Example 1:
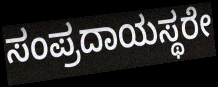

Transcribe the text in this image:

ಸಂಪ್ರದಾಯಸ್ಥರೇ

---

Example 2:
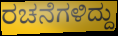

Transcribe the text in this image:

ರಚನೆಗಳಿದ್ದು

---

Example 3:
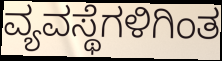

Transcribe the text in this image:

ವ್ಯವಸ್ಥೆಗಳಿಗಿಂತ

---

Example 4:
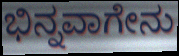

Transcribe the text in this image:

ಭಿನ್ನವಾಗೇನು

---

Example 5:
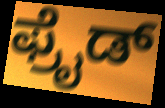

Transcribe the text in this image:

ಫ್ರೈಡ್